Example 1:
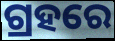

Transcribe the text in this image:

ଗ୍ରହରେ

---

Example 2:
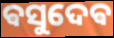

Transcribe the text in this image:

ଵସୁଦେଵ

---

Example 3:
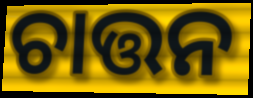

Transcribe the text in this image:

ଚାତ୍ତନ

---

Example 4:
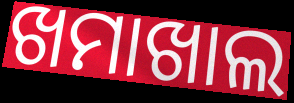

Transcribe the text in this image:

ଖମାଖାଲ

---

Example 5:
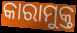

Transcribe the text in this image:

କାରାମୁକ୍ତ